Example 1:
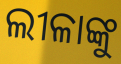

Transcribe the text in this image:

ଲୀଳାଙ୍କୁ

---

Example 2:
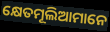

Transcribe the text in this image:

କ୍ଷେତମୂଲିଆମାନେ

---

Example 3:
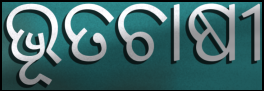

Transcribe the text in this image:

ଭୂତଚାଷୀ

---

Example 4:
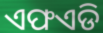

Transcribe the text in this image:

ଏଫଏଡି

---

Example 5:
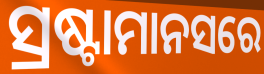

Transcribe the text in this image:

ସ୍ରଷ୍ଟାମାନସରେ